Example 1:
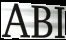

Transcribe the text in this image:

ABI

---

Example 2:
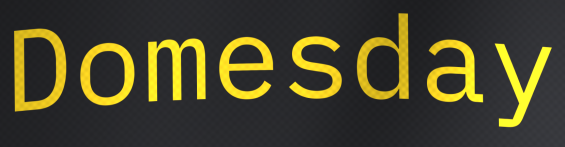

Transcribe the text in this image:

Domesday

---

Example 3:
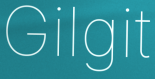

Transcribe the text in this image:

Gilgit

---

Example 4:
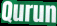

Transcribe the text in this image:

Qurun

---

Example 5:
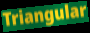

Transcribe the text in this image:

Triangular